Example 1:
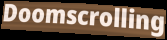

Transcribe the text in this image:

Doomscrolling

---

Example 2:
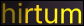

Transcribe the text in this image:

hirtum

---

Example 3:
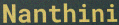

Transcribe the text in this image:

Nanthini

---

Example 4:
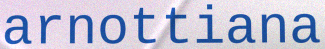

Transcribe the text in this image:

arnottiana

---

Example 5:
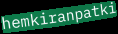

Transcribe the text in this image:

hemkiranpatki